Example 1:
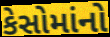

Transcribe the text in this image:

કેસોમાંનો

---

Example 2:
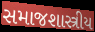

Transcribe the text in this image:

સમાજશાસ્ત્રીય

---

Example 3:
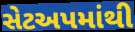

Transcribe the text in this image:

સેટઅપમાંથી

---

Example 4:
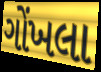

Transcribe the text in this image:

ગોંખલા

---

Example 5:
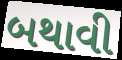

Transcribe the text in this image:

બથાવી